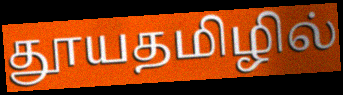
தூயதமிழில்